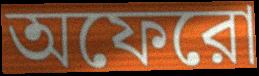
অফেরো